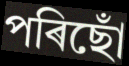
পৰিছোঁ